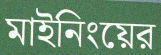
মাইনিংয়ের